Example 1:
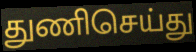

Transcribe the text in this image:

துணிசெய்து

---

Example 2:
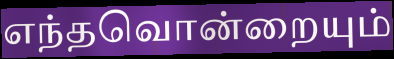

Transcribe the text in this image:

எந்தவொன்றையும்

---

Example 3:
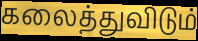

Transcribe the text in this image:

கலைத்துவிடும்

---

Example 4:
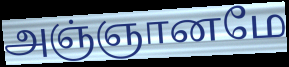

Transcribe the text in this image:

அஞ்ஞானமே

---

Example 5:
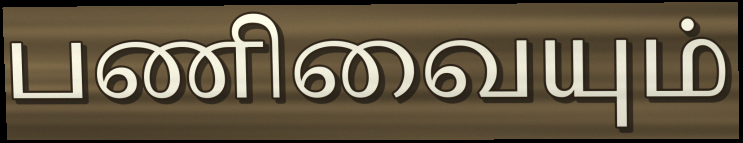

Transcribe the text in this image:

பணிவையும்